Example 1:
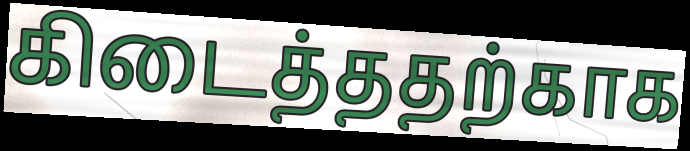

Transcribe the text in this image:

கிடைத்ததற்காக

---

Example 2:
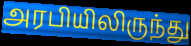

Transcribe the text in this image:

அரபியிலிருந்து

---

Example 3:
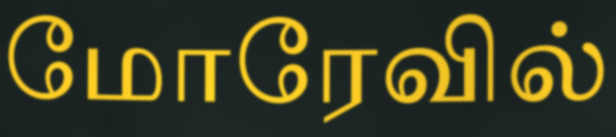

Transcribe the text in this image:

மோரேவில்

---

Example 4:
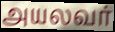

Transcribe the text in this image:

அயலவர்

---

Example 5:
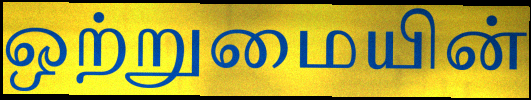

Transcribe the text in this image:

ஒற்றுமையின்